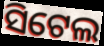
ସିଟେଲ